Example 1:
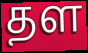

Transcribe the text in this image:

தள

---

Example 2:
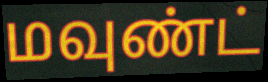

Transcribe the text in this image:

மவுண்ட்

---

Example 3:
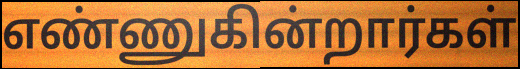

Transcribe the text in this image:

எண்ணுகின்றார்கள்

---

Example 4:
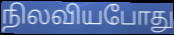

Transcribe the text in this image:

நிலவியபோது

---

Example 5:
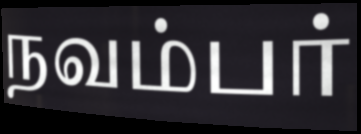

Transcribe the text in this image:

நவம்பர்